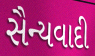
સૈન્યવાદી